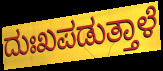
ದುಃಖಪಡುತ್ತಾಳೆ